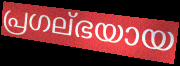
പ്രഗല്ഭയായ